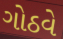
ગોઠવે